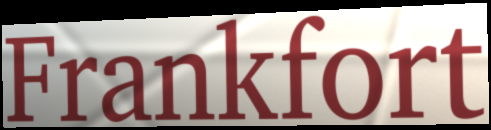
Frankfort